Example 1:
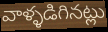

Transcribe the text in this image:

వాళ్ళడిగినట్లు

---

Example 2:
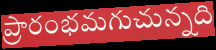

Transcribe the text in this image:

ప్రారంభమగుచున్నది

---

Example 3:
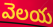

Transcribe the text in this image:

వెలయ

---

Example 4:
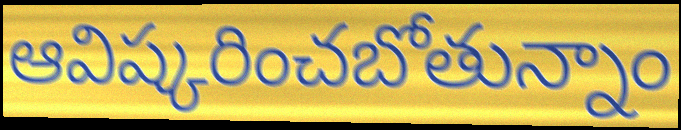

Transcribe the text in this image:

ఆవిష్కరించబోతున్నాం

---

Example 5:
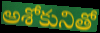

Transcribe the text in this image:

అశోకునితో